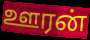
ஊரன்